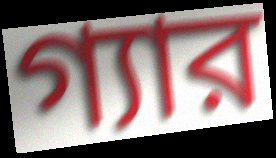
গ্যার